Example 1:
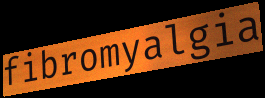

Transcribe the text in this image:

fibromyalgia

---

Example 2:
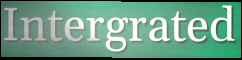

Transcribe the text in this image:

Intergrated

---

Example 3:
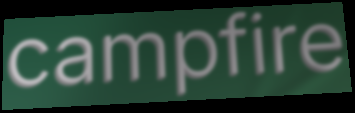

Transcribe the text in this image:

campfire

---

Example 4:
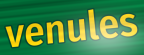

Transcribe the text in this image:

venules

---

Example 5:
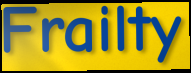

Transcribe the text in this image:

Frailty